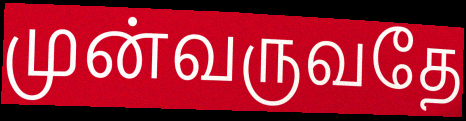
முன்வருவதே